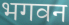
भगवन